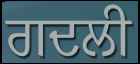
ਗਦਲੀ